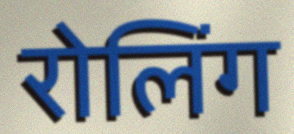
रोलिंग